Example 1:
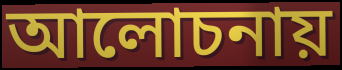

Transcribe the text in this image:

আলোচনায়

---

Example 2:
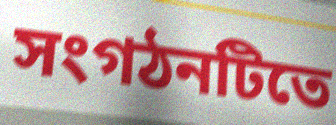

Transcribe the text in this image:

সংগঠনটিতে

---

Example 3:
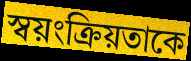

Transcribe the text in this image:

স্বয়ংক্রিয়তাকে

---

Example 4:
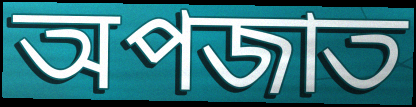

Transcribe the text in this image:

অপজাত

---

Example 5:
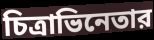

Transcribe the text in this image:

চিত্রাভিনেতার